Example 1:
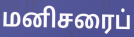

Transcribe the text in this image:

மனிசரைப்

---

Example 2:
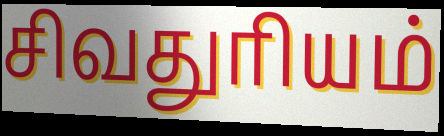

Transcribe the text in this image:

சிவதுரியம்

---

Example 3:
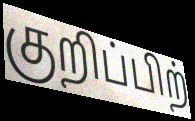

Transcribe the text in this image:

குறிப்பிற்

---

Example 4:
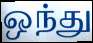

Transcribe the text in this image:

ஒந்து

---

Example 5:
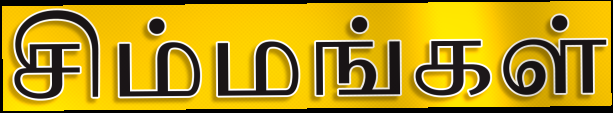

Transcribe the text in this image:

சிம்மங்கள்